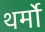
थर्मो